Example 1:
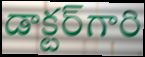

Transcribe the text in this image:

డాక్టర్‌గారి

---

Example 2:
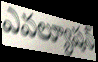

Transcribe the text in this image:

ఎవల్యూషన్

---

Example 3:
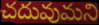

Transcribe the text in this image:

చదువుమని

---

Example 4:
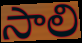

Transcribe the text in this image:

సాలి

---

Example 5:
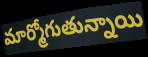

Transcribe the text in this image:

మార్మోగుతున్నాయి